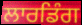
ਲਾਰਡਿੰਗ